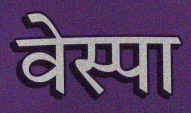
वेस्‍पा